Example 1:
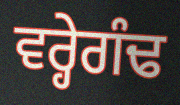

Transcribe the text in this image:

ਵਰ੍ਹੇਗੰਢ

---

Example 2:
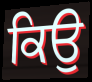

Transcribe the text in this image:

ਕਿਉ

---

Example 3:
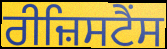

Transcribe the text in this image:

ਰੀਜ਼ਿਸਟੈਂਸ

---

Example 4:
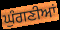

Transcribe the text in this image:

ਘੁੰਗਣੀਆਂ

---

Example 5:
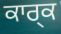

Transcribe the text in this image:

ਕਾਰ੍ਕ